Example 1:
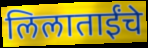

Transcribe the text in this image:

लिलाताईंचे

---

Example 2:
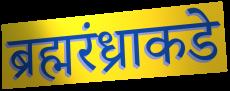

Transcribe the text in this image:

ब्रह्मरंध्राकडे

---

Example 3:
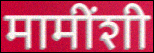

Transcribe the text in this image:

मामींशी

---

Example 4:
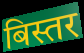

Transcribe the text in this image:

बिस्तर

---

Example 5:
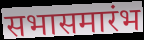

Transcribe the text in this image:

सभासमारंभ